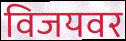
विजयवर